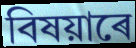
বিষয়াৰে